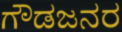
ಗೌಡಜನರ